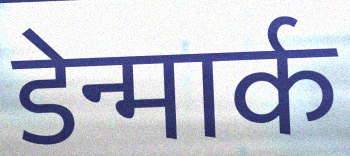
डेन्मार्क